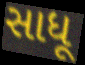
સાધૂ